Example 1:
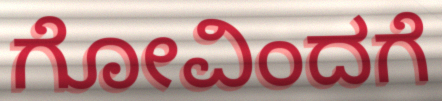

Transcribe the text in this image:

ಗೋವಿಂದಗೆ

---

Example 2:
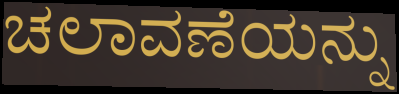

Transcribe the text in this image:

ಚಲಾವಣೆಯನ್ನು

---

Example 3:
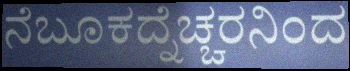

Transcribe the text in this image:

ನೆಬೂಕದ್ನೆಚ್ಚರನಿಂದ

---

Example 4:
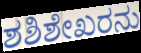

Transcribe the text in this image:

ಶಶಿಶೇಖರನು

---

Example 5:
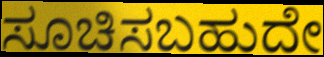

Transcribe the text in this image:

ಸೂಚಿಸಬಹುದೇ